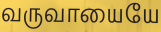
வருவாயையே